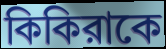
কিকিরাকে